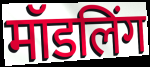
मॉडलिंग